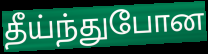
தீய்ந்துபோன